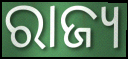
ରାଜ୍ଯ